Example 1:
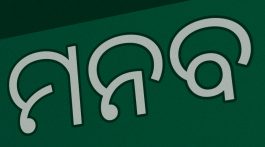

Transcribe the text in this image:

ମନବ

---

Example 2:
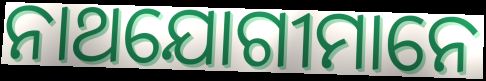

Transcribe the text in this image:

ନାଥଯୋଗୀମାନେ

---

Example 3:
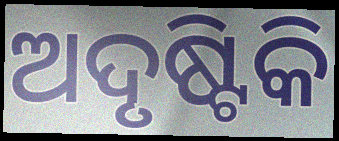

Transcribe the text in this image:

ଅଦୃଷ୍ଟିକି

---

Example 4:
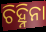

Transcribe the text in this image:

ଚିହ୍ନିନା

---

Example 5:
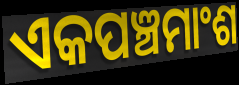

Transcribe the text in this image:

ଏକପଞ୍ଚମାଂଶ